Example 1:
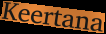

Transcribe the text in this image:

Keertana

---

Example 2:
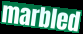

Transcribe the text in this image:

marbled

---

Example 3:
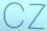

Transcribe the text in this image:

CZ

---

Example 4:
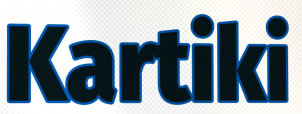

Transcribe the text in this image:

Kartiki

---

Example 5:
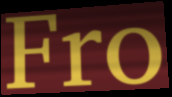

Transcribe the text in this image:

Fro